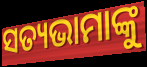
ସତ୍ୟଭାମାଙ୍କୁ